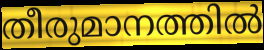
തീരുമാനത്തിൽ